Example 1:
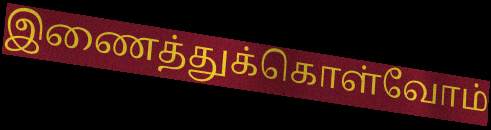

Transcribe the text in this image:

இணைத்துக்கொள்வோம்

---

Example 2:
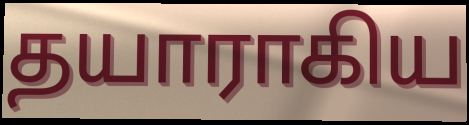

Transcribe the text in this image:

தயாராகிய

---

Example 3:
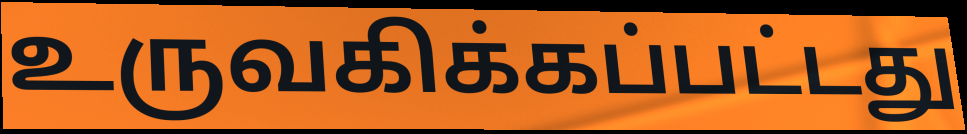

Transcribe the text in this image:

உருவகிக்கப்பட்டது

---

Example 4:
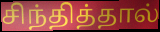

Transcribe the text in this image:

சிந்தித்தால்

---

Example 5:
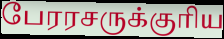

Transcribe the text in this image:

பேரரசருக்குரிய